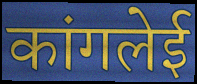
कांगलेई